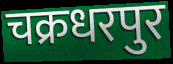
चक्रधरपुर